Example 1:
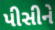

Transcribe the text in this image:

પીસીને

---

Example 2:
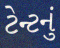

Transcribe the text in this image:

ટેન્ટનું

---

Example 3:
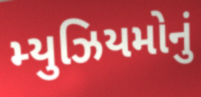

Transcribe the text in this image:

મ્યુઝિયમોનું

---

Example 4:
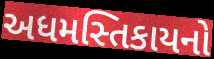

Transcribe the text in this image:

અધમસ્તિકાયનો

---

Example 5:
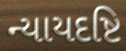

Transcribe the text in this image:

ન્યાયદષ્ટિ